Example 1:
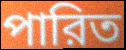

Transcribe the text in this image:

পারিত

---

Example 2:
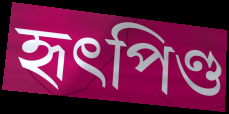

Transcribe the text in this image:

হৃৎপিণ্ড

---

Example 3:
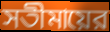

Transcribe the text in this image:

সতীমায়ের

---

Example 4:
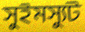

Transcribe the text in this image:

সুইমস্যুট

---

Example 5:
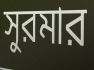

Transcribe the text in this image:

সুরমার